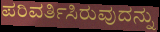
ಪರಿವರ್ತಿಸಿರುವುದನ್ನು